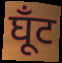
घूँट